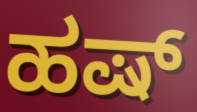
ಹಷ್